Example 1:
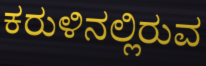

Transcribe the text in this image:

ಕರುಳಿನಲ್ಲಿರುವ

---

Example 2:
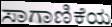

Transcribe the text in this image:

ಸಾಗಾಣಿಕೆಯ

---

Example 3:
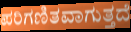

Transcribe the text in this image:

ಪರಿಗಣಿತವಾಗುತ್ತದೆ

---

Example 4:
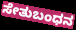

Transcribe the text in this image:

ಸೇತುಬಂಧನ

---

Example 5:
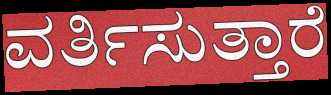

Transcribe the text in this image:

ವರ್ತಿಸುತ್ತಾರೆ